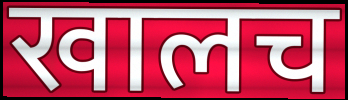
खालच